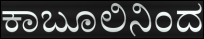
ಕಾಬೂಲಿನಿಂದ